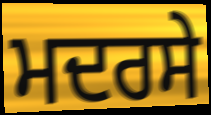
ਮਦਰਸੇ